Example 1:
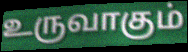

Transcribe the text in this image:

உருவாகும்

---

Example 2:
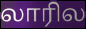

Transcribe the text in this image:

லாரில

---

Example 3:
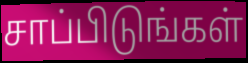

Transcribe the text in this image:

சாப்பிடுங்கள்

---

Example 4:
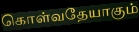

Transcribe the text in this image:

கொள்வதேயாகும்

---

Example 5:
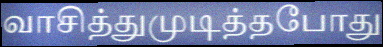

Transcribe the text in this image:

வாசித்துமுடித்தபோது